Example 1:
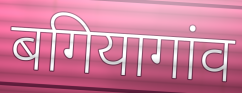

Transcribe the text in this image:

बगियागांव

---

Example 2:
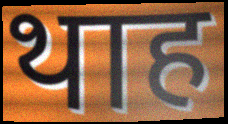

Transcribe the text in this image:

थाह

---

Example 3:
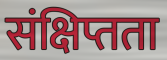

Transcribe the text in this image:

संक्षिप्तता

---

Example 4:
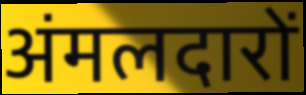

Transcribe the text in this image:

अंमलदारों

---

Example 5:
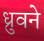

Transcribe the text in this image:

ध्रुवने